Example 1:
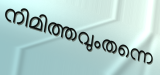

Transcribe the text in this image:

നിമിത്തവുംതന്നെ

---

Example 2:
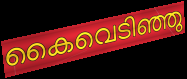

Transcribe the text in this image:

കൈവെടിഞ്ഞു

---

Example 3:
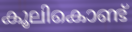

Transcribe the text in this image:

കൂലികൊണ്ട്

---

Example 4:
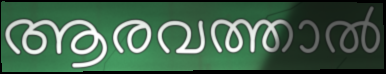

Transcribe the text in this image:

ആരവത്താൽ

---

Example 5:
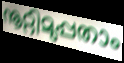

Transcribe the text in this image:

നൂറ്റിമുപ്പതാം